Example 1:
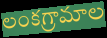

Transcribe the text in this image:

లంకగ్రామాల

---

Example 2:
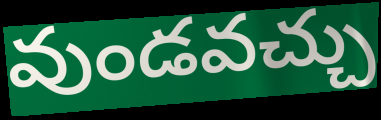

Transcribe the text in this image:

వుండవచ్చు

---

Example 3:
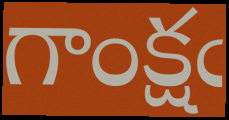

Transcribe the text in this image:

గాంక్షఁ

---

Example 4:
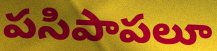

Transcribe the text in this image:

పసిపాపలూ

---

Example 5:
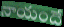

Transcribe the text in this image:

నాయందే